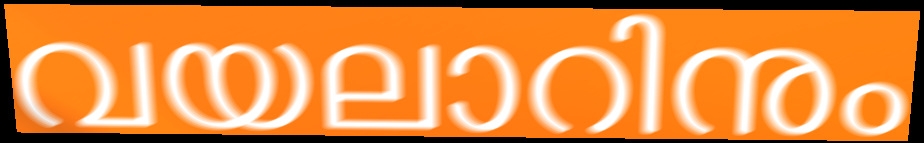
വയലാറിനും